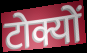
टोक्यों